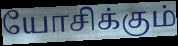
யோசிக்கும்